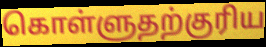
கொள்ளுதற்குரிய